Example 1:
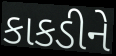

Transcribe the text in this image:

કાકડીને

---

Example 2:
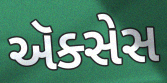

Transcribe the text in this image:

ઍક્સેસ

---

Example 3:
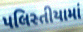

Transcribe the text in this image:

પલિસ્તીયામાં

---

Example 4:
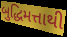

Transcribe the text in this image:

બુદ્ધિમત્તાથી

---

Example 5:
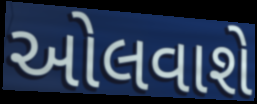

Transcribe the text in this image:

ઓલવાશે